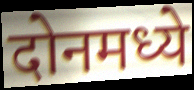
दोनमध्ये